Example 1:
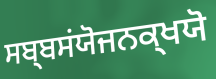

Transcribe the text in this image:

ਸਬ੍ਬਸਂਯੋਜਨਕ੍ਖਯੋ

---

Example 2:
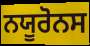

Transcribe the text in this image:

ਨਯੂਰੋਨਸ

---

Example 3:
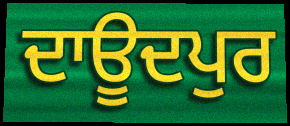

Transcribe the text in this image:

ਦਾਊਦਪੁਰ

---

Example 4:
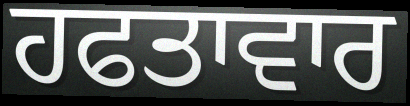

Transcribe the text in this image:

ਹਫਤਾਵਾਰ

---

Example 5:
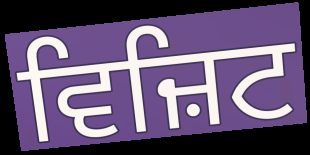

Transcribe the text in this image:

ਵਿਜ਼ਿਟ